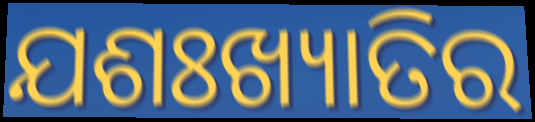
ଯଶଃଖ୍ୟାତିର